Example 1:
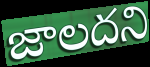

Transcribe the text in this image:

జాలదని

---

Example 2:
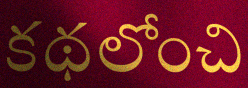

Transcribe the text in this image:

కథలోంచి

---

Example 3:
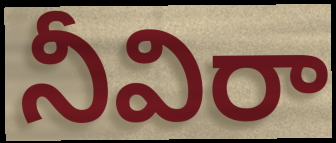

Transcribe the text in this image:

నీవిరా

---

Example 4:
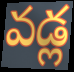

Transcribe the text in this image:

వడ్ల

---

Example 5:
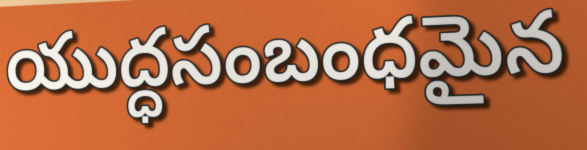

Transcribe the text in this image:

యుద్ధసంబంధమైన